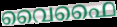
വൈഫൈ